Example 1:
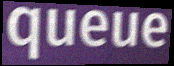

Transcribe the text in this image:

queue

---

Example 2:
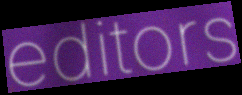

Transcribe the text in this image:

editors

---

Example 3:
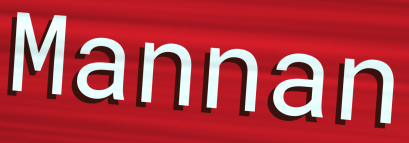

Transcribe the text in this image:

Mannan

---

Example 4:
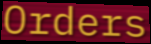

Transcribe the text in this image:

Orders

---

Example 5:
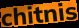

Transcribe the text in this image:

chitnis